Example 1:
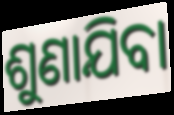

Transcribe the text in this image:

ଶୁଣାଯିବା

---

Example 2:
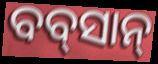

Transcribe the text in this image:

ବବ୍‌ସାନ୍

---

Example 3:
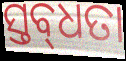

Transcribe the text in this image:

ସ୍ତବ୍‍ଧତା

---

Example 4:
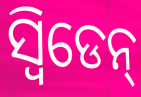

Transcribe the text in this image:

ସ୍ଵିଡେନ୍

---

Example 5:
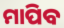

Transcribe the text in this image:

ମାପିବ